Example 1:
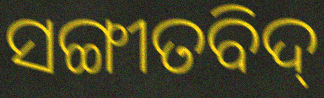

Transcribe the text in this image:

ସଙ୍ଗୀତବିଦ୍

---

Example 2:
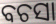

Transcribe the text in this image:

ବଚସା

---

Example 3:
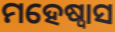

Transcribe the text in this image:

ମହେଷ୍ୱାସ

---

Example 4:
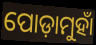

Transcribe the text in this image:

ପୋଡ଼ାମୁହାଁ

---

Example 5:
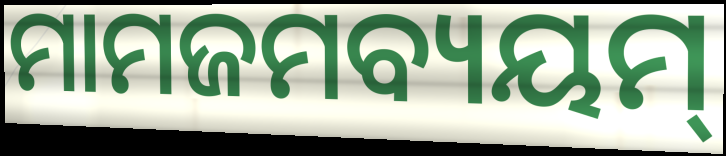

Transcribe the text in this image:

ମାମଜମବ୍ୟୟମ୍